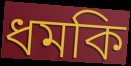
ধমকি